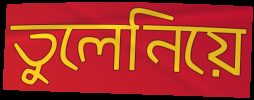
তুলেনিয়ে